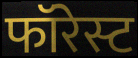
फॉरेस्‍ट